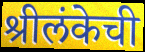
श्रीलंकेची